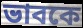
ভাবকে